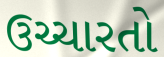
ઉચ્ચારતો